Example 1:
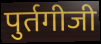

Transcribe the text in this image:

पुर्तगीजी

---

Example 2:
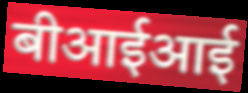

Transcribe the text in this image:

बीआईआई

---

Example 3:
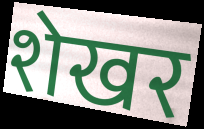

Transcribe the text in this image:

शेखर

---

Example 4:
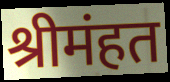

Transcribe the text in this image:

श्रीमंहत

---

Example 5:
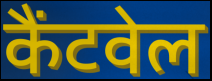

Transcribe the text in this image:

कैंटवेल